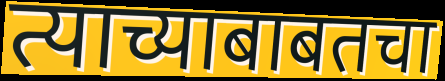
त्याच्याबाबतचा